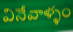
వినేవాళ్ళం